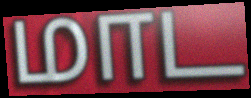
மாட